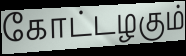
கோட்டழகும்